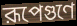
রূপেগুণে